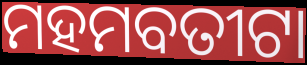
ମହମବତୀଟା